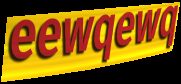
eewqewq